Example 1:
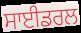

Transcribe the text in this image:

ਸਾਈਡਰਲ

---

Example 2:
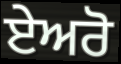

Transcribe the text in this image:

ਏਅਰੋ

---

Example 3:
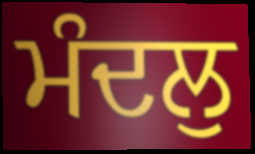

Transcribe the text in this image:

ਮੰਦਲੁ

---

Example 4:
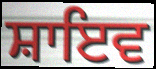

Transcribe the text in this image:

ਸ਼ਾਇਵ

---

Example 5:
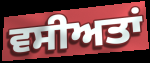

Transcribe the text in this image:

ਵਸੀਅਤਾਂ